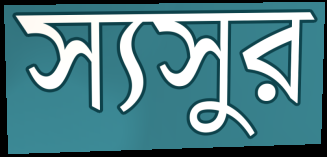
স্যসুর